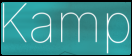
Kamp